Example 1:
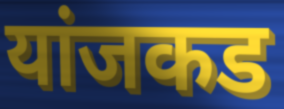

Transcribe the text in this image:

यांजकड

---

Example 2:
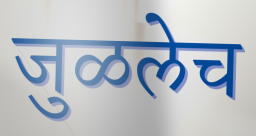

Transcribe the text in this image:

जुळलेच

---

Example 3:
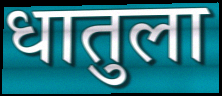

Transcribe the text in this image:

धातुला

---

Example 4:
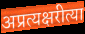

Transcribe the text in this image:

अप्रत्यक्षरीत्या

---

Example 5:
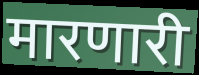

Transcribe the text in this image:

मारणारी